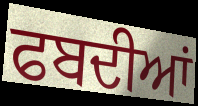
ਫਬਦੀਆਂ